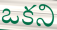
ఒకని